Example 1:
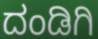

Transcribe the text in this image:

ದಂಡಿಗಿ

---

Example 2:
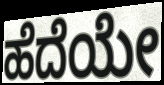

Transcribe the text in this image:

ಹೆದೆಯೇ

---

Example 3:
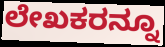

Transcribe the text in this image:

ಲೇಖಕರನ್ನೂ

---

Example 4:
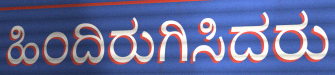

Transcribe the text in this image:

ಹಿಂದಿರುಗಿಸಿದರು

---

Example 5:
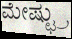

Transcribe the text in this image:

ಮೇಷ್ಟ್ರು